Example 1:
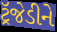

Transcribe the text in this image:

ટ્રૅજેડીને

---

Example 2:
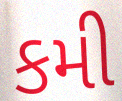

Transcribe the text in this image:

કમી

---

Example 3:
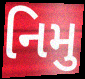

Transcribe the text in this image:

નિમુ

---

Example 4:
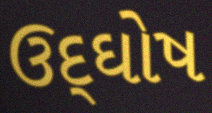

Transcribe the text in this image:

ઉદ્‌ઘોષ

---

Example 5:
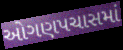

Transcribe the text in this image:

ઓગણપચાસમાં